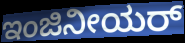
ಇಂಜಿನೀಯರ್